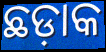
ଛଡ଼ାକ